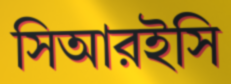
সিআরইসি